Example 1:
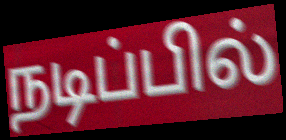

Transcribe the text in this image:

நடிப்பில்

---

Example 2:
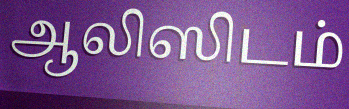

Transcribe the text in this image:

ஆலிஸிடம்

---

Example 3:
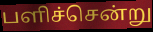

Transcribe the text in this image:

பளிச்சென்று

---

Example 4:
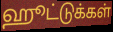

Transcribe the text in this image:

ஹூட்டுக்கள்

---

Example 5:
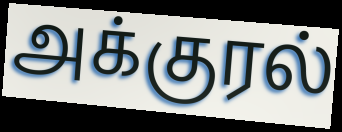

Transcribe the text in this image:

அக்குரல்